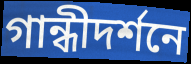
গান্ধীদর্শনে